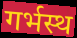
गर्भस्‍थ